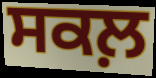
ਸਕਲ਼